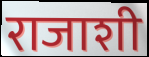
राजाशी